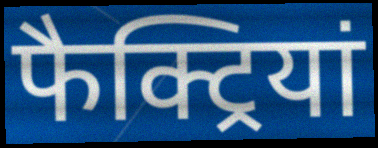
फैक्ट्रियां